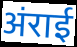
अंराई